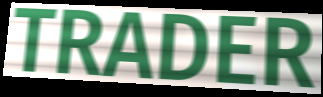
TRADER